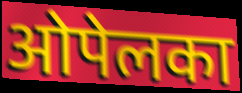
ओपेलका